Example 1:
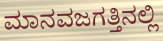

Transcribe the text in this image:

ಮಾನವಜಗತ್ತಿನಲ್ಲಿ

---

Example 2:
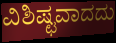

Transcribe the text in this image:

ವಿಶಿಷ್ಟವಾದದು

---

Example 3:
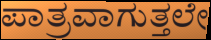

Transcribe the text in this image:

ಪಾತ್ರವಾಗುತ್ತಲೇ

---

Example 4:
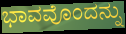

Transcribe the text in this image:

ಭಾವವೊಂದನ್ನು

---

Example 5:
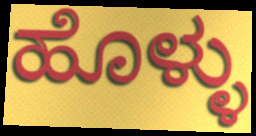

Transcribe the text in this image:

ಹೊಳ್ಳು